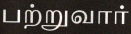
பற்றுவார்